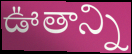
ఊతాన్ని